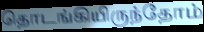
தொடங்கியிருந்தோம்